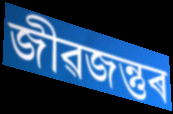
জীৱজন্তুৰ